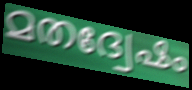
മതദ്വേഷം